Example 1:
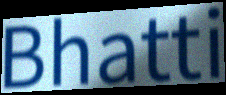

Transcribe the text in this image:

Bhatti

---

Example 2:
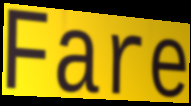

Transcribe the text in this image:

Fare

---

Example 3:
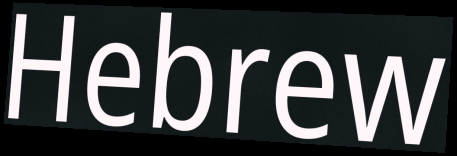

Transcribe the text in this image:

Hebrew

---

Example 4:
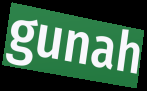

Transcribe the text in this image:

gunah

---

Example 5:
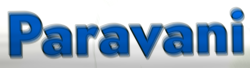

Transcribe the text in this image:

Paravani